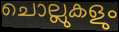
ചൊല്ലുകളും